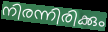
നിരന്നിരിക്കും